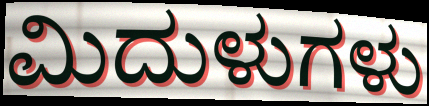
ಮಿದುಳುಗಳು